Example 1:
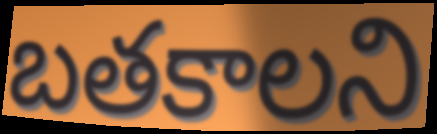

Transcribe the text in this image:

బతకాలని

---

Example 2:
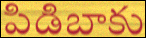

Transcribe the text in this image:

పిడిబాకు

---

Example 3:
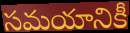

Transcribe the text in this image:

సమయానికీ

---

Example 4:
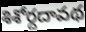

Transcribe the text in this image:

శిశోర్దదావథ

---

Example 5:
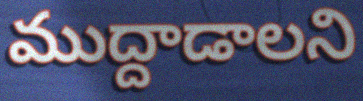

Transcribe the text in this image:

ముద్దాడాలని